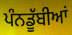
ਪੰਨਡੂੱਬੀਆਂ